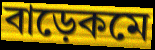
বাড়েকমে